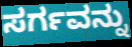
ಸರ್ಗವನ್ನು